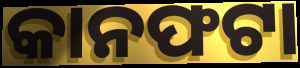
କାନଫଟା